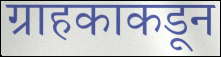
ग्राहकाकडून